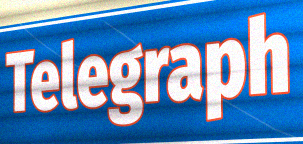
Telegraph